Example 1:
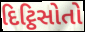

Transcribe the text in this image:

દિટ્ઠિસોતો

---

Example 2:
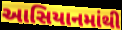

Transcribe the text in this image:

આસિયાનમાંથી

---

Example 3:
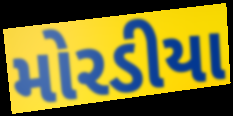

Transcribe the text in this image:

મોરડીયા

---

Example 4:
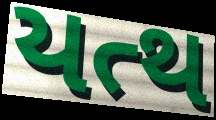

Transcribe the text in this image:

યત્થ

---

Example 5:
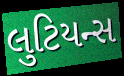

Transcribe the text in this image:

લુટિયન્સ